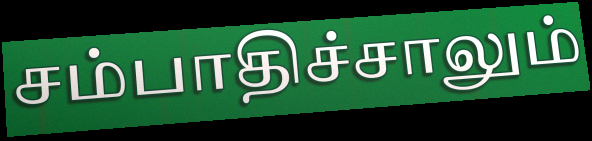
சம்பாதிச்சாலும்